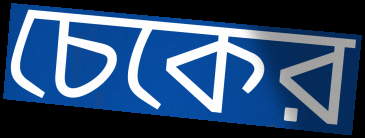
চেকের